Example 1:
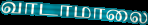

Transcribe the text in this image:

வாடாமாலை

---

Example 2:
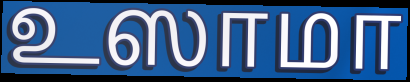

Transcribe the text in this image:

உஸாமா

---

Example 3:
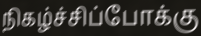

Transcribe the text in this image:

நிகழ்ச்சிப்போக்கு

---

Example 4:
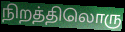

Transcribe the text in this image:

நிறத்திலொரு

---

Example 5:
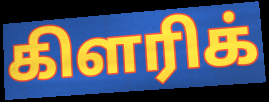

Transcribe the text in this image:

கிளரிக்